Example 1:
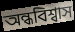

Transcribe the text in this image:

অন্ধবিশ্বাস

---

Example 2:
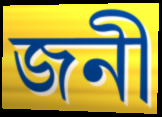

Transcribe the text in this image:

জনী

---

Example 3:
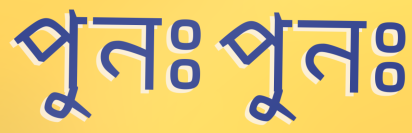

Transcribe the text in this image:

পুনঃপুনঃ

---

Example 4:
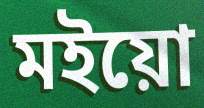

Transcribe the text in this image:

মইয়ো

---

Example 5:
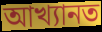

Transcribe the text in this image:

আখ্যানত